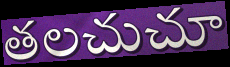
తలచుచూ